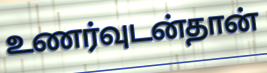
உணர்வுடன்தான்